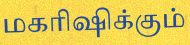
மகரிஷிக்கும்